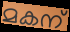
മകന്